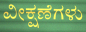
ವೀಕ್ಷಣೆಗಳು